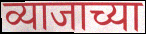
व्याजाच्या